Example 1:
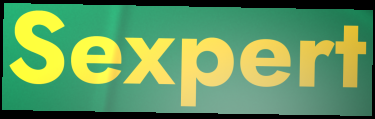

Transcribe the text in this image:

Sexpert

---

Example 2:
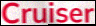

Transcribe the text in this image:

Cruiser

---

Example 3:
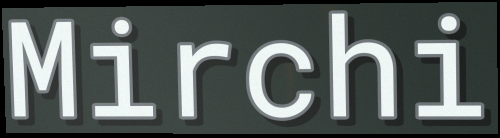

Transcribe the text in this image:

Mirchi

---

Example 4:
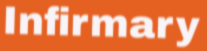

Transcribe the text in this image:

Infirmary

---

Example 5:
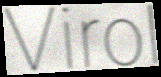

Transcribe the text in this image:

Virol